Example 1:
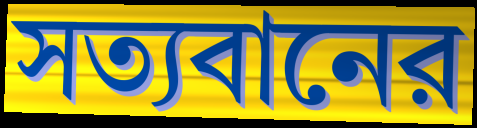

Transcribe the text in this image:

সত্যবানের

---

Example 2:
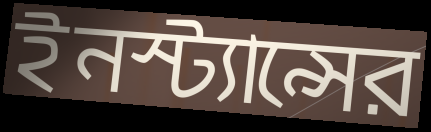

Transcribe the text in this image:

ইনস্ট্যান্সের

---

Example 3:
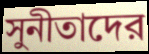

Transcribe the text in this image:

সুনীতাদের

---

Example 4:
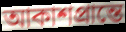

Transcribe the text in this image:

আকাশপ্রান্তে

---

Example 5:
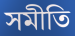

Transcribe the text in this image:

সমীতি